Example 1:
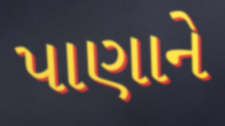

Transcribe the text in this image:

પાણાને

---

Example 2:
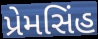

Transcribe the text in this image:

પ્રેમસિંહ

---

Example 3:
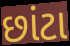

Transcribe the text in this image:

છાંટા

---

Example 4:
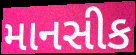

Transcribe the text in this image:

માનસીક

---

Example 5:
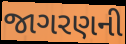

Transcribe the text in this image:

જાગરણની